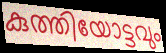
കുത്തിയോട്ടവും